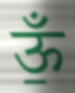
ऊँ॒